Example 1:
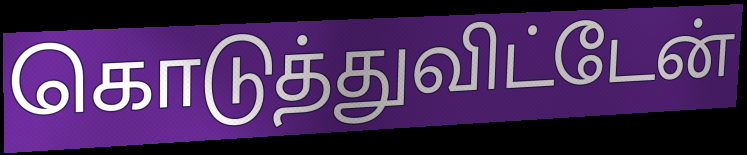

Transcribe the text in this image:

கொடுத்துவிட்டேன்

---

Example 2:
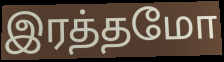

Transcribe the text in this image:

இரத்தமோ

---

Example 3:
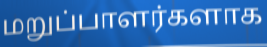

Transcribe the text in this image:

மறுப்பாளர்களாக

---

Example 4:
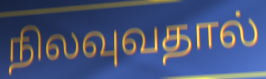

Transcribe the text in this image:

நிலவுவதால்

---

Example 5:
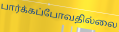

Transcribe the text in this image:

பார்க்கப்போவதில்லை